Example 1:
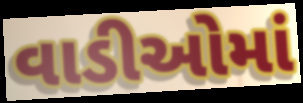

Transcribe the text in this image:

વાડીઓમાં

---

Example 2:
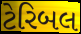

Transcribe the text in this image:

ટેરિબલ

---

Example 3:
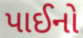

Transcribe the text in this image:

પાઈનો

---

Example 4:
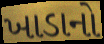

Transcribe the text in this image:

ખાડાનો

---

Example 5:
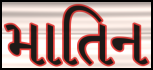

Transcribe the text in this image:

માતિન